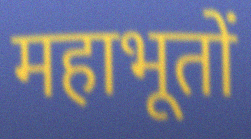
महाभूतों